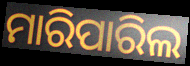
ମାରିପାରିଲ